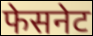
फेसनेट